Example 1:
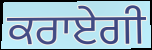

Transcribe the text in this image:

ਕਰਾਏਗੀ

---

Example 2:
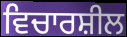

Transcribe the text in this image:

ਵਿਚਾਰਸ਼ੀਲ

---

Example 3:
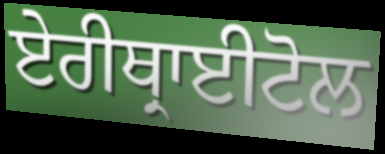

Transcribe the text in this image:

ਏਰੀਥ੍ਰਾਈਟੋਲ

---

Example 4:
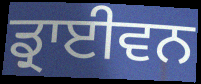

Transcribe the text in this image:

ਡ੍ਰਾਈਵਨ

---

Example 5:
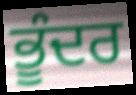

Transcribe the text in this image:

ਭੂੰਦਰ